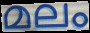
മലം